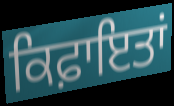
ਕਿਫ਼ਾਇਤਾਂ